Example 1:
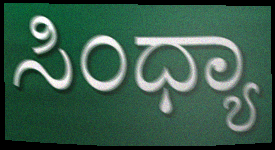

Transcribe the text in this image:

ಸಿಂಧ್ಯಾ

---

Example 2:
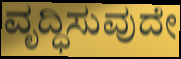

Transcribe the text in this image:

ವೃದ್ಧಿಸುವುದೇ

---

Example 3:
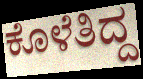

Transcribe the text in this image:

ಕೊಳೆತಿದ್ದ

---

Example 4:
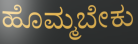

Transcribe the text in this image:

ಹೊಮ್ಮಬೇಕು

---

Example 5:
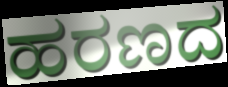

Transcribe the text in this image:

ಹರಣದ